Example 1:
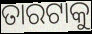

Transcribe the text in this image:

ତାରଟାକୁ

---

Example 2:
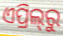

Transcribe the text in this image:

ଏପ୍ରିଲ୍‍ରୁ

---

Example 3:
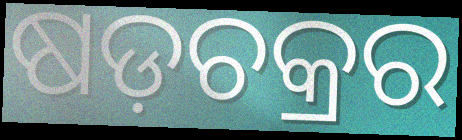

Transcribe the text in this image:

ଷଡ଼ଚକ୍ରର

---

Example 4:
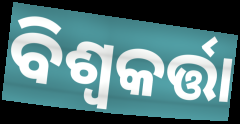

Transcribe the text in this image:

ବିଶ୍ୱକର୍ତ୍ତା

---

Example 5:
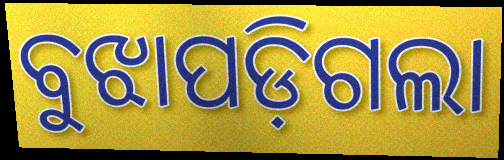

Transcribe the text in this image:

ବୁଝାପଡ଼ିଗଲା